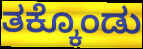
ತಕ್ಕೊಂಡು